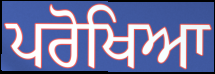
ਪਰੋਖਿਆ